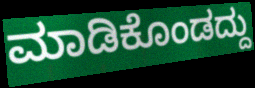
ಮಾಡಿಕೊಂಡದ್ದು